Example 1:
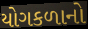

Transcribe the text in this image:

યોગકળાનો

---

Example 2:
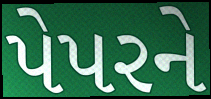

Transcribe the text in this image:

પેપરને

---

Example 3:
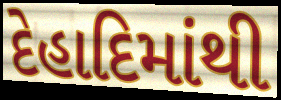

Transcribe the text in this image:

દેહાદિમાંથી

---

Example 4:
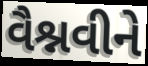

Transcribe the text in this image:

વૈશ્નવીને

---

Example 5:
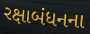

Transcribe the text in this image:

રક્ષાબંધનના